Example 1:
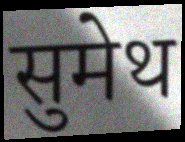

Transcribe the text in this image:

सुमेथ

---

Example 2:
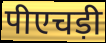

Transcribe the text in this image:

पीएचड़ी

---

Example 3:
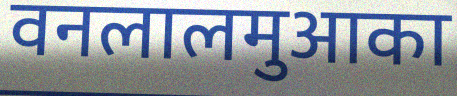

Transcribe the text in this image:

वनलालमुआका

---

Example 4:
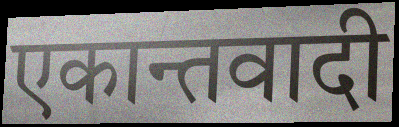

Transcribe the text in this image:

एकान्तवादी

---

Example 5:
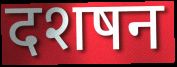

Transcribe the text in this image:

दशषन